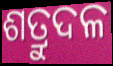
ଶତ୍ରୁଦଳ